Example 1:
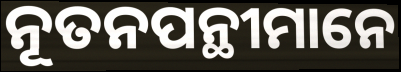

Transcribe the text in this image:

ନୂତନପନ୍ଥୀମାନେ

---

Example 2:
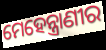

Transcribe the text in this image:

ମେହେନ୍ତ୍ରାଣୀର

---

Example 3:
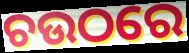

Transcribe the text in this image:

ଚଉଠରେ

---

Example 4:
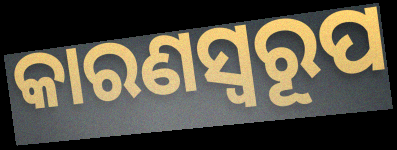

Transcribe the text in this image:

କାରଣସ୍ୱରୂପ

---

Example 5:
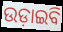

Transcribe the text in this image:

ଉଡ଼ାଇବି